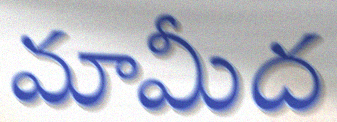
మామీద